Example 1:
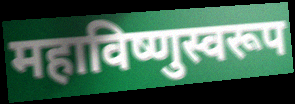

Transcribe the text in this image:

महाविष्णुस्वरूप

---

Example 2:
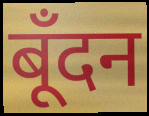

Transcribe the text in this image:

बूँदन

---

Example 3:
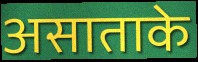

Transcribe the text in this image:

असाताके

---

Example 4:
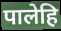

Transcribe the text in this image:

पालेहि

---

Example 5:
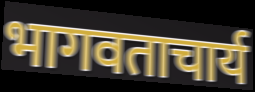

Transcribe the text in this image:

भागवताचार्य